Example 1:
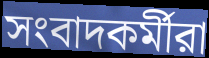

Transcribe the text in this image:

সংবাদকর্মীরা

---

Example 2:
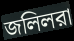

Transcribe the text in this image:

জলিলরা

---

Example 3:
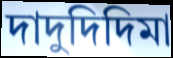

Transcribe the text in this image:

দাদুদিদিমা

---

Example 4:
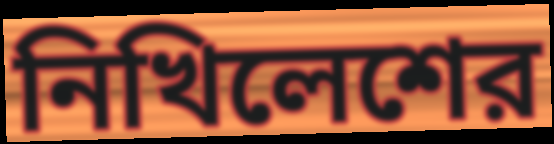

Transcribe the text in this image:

নিখিলেশের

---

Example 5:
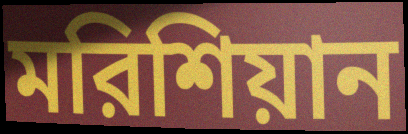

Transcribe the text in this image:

মরিশিয়ান